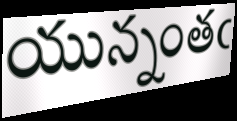
యున్నంతఁ